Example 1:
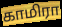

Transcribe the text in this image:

காமிரா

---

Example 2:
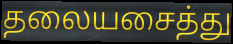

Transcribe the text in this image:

தலையசைத்து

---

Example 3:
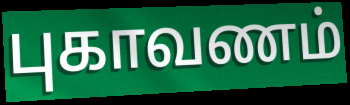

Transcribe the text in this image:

புகாவணம்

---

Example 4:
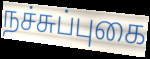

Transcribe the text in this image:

நச்சுப்புகை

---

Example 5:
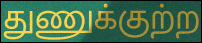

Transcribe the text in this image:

துணுக்குற்ற